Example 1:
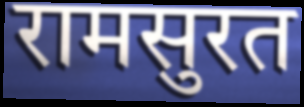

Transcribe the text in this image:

रामसुरत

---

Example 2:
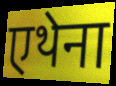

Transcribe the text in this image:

एथेना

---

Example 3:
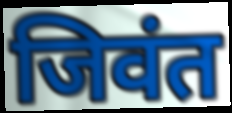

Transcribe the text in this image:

जिवंत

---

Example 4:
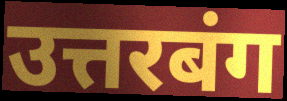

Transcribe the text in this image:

उत्तरबंग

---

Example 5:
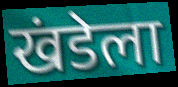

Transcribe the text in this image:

खंडेला